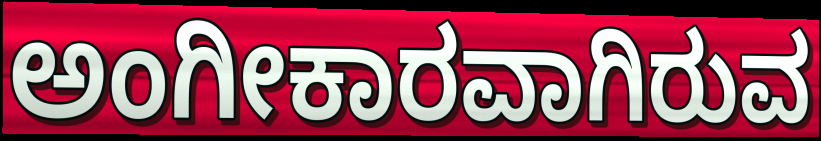
ಅಂಗೀಕಾರವಾಗಿರುವ